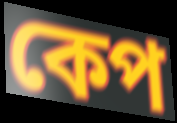
কেপ